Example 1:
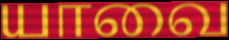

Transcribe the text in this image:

யாவை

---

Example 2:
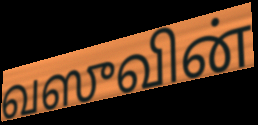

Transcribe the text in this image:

வஸுவின்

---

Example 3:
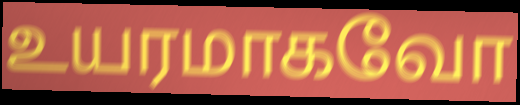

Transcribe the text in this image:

உயரமாகவோ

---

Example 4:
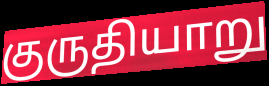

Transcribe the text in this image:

குருதியாறு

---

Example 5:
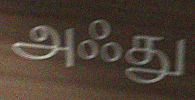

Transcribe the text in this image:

அஃது